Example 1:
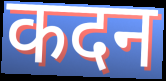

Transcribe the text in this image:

कदन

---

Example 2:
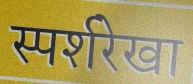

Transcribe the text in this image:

स्पर्शरेखा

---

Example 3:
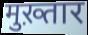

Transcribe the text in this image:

मुख़्तार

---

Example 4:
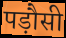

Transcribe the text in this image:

पड़ौसी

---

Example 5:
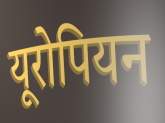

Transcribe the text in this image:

यूरोपियन